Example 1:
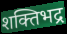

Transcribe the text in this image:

शक्तिभद्र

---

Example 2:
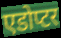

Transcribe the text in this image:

एडोप्टर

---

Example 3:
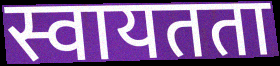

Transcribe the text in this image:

स्वायतता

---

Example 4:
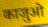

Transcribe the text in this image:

काजुओ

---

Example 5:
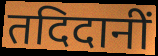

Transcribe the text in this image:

तदिदानीं